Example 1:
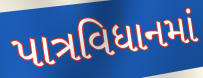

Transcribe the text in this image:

પાત્રવિધાનમાં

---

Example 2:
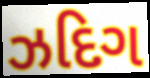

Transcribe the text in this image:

ઝદિગ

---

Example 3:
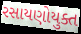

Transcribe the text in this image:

રસાયણોયુક્ત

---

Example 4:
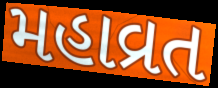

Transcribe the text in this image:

મહાવ્રત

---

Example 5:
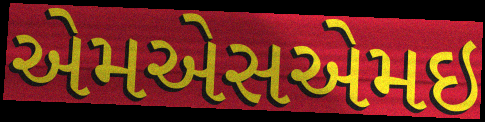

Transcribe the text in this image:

એમએસએમઇ